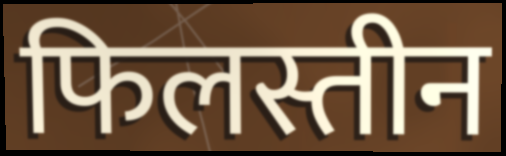
फिलस्तीन